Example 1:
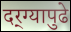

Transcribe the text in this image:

दर्ग्यापुढे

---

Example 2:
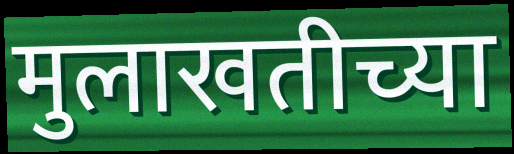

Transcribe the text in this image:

मुलाखतीच्या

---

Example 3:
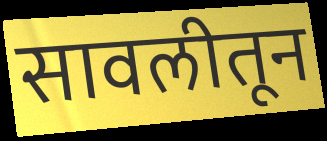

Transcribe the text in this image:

सावलीतून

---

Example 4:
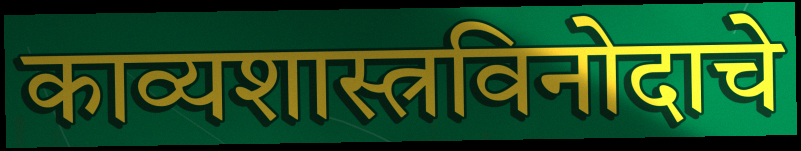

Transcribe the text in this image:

काव्यशास्त्रविनोदाचे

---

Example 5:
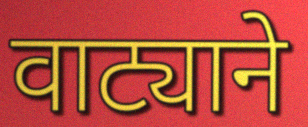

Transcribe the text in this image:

वाट्याने